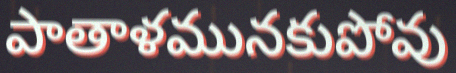
పాతాళమునకుపోవు